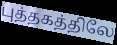
புத்தகத்திலே